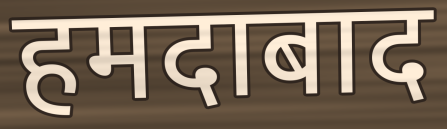
हमदाबाद